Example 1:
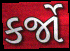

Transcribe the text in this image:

કર્જો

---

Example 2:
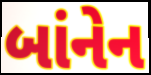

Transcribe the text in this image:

બાંનેન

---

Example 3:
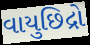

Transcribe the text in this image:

વાયુછિદ્રો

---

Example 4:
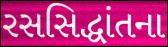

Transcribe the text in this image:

રસસિદ્ધાંતના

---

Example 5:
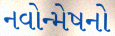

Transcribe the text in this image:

નવોન્મેષનો